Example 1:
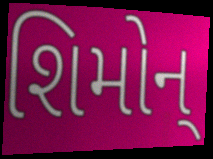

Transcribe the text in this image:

શિમોન્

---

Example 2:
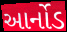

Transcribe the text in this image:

આર્નોડ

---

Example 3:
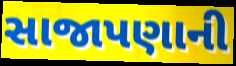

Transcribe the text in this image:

સાજાપણાની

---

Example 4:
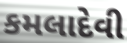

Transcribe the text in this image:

કમલાદેવી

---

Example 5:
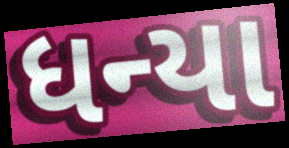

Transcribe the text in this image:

ધન્યા